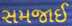
સમજાઈ